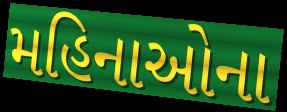
મહિનાઓના